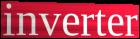
inverter